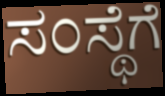
ಸಂಸ್ಥೆಗೆ